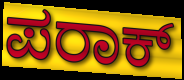
ಪರಾಕ್